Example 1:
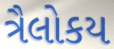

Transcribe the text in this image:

ત્રૈલોકય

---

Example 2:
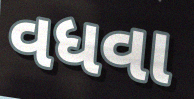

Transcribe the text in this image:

વધવા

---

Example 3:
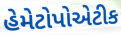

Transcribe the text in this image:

હેમેટોપોએટીક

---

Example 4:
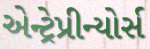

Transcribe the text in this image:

એન્ટ્રેપ્રીન્યોર્સ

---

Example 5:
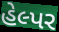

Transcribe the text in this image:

હેલ્પર